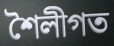
শৈলীগত